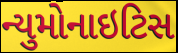
ન્યુમોનાઇટિસ